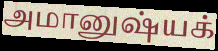
அமானுஷ்யக்